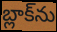
బ్లాక్‌ను